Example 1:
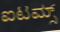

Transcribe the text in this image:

ಐಟಮ್ಸ್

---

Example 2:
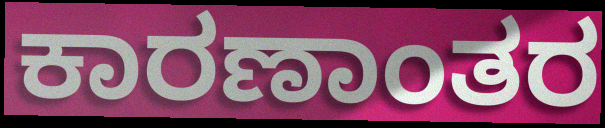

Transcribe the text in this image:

ಕಾರಣಾಂತರ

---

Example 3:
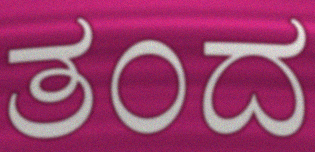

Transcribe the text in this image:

ತಂದ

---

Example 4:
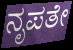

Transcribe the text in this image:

ನೃಪತೇ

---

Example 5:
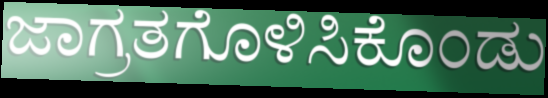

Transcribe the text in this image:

ಜಾಗ್ರತಗೊಳಿಸಿಕೊಂಡು